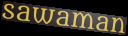
sawaman